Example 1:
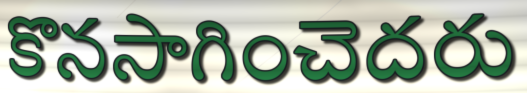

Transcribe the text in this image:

కొనసాగించెదరు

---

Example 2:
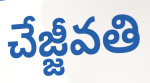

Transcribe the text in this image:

చేజ్జీవతి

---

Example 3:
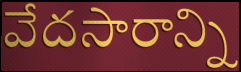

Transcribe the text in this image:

వేదసారాన్ని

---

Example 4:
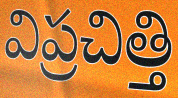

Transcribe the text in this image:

విప్రచిత్తి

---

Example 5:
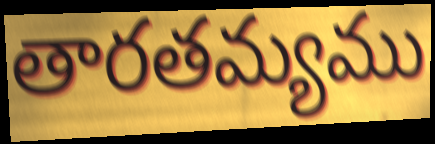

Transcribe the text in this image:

తారతమ్యము